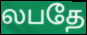
லபதே